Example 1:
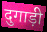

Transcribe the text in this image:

दुगाड़ी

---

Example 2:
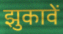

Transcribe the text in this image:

झुकावें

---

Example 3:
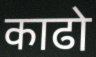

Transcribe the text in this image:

काढो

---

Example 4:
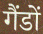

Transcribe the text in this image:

गैंडों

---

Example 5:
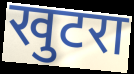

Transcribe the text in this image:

खुटरा